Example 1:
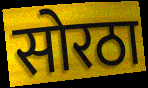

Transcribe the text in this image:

सोरठा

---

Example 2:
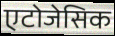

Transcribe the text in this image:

एटोजेसिक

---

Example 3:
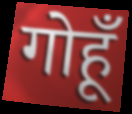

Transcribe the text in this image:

गोहूँ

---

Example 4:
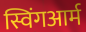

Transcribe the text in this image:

स्विंगआर्म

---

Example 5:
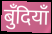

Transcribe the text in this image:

बुँदियाँ